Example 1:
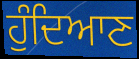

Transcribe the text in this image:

ਹੁੰਦਿਆਣ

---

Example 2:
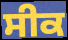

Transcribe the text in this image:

ਸੀਕ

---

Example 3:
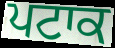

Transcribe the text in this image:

ਪਟਾਕ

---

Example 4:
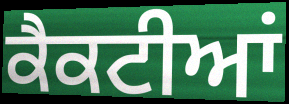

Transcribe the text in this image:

ਕੈਕਟੀਆਂ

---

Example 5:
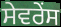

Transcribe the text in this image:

ਸੇਵਰੇਂਸ